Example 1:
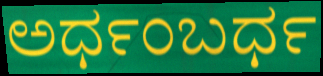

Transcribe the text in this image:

ಅರ್ಧಂಬರ್ಧ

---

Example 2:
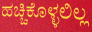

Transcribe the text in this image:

ಹಚ್ಚಿಕೊಳ್ಳಲಿಲ್ಲ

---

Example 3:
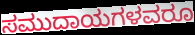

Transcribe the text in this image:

ಸಮುದಾಯಗಳವರೂ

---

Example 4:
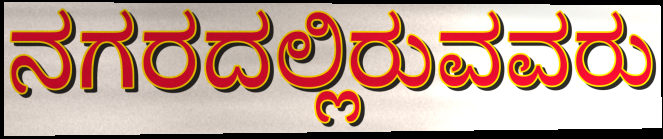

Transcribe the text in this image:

ನಗರದಲ್ಲಿರುವವರು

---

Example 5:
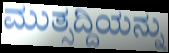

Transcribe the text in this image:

ಮುತ್ಸದ್ದಿಯನ್ನು